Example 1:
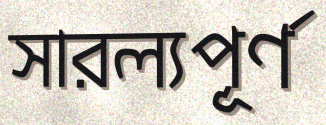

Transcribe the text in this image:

সারল্যপূর্ণ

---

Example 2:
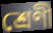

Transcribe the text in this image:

শ্রেণী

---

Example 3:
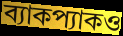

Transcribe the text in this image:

ব্যাকপ্যাকও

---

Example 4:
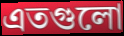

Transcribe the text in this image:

এতগুলো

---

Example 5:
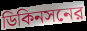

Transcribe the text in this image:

ডিকিনসনের